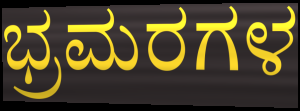
ಭ್ರಮರಗಳ